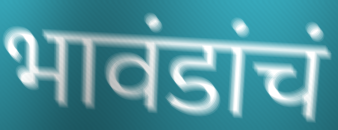
भावंडांचं